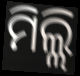
ମିଲ୍ଲି